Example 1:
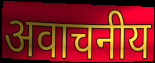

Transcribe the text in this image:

अवाचनीय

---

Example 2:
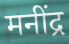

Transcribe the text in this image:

मनींद्र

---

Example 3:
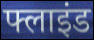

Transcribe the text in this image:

फ्लाइंड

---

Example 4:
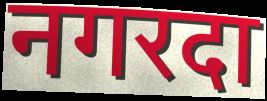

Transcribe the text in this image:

नगरदा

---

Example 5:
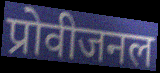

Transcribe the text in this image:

प्रोवीजनल